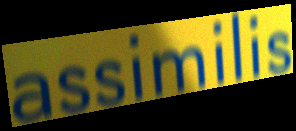
assimilis